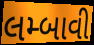
લમ્બાવી